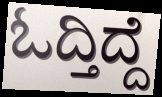
ಓದ್ತಿದ್ದೆ